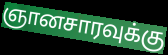
ஞானசாரவுக்கு